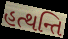
હત્થન્તિ